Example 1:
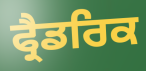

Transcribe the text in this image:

ਫ੍ਰੈਡਰਿਕ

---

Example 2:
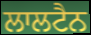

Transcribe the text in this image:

ਲਾਲਟੈਨ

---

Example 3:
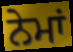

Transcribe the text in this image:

ਨੇਮਾਂ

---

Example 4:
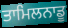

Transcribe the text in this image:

ਤਾਮਿਲਨਾਡੂ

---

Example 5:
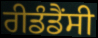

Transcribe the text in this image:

ਰੀਡੰਡੈਂਸੀ